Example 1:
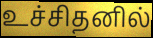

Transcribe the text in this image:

உச்சிதனில்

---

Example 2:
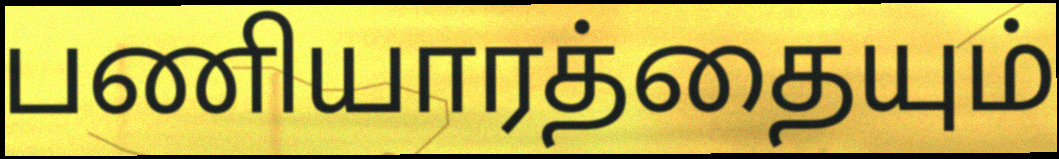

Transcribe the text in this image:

பணியாரத்தையும்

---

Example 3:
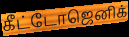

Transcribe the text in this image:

கீட்டோஜெனிக்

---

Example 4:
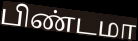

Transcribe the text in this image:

பிண்டமா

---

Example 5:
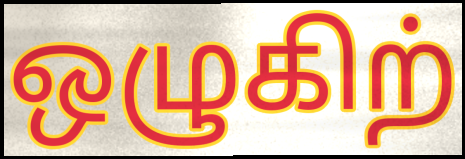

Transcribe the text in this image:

ஒழுகிற்